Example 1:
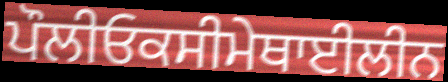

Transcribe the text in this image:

ਪੌਲੀਓਕਸੀਮੇਥਾਈਲੀਨ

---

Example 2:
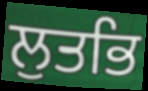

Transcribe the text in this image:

ਲੁਤਭਿ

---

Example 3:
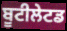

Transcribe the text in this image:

ਬੂਟੀਲੇਟਡ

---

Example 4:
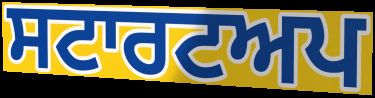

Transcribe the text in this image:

ਸਟਾਰਟਅਪ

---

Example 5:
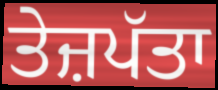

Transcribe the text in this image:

ਤੇਜ਼ਪੱਤਾ